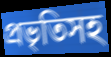
প্রভৃতিসহ